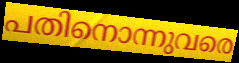
പതിനൊന്നുവരെ